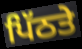
ਪਿੱਠਤੇ